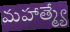
మహాత్మ్యే